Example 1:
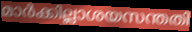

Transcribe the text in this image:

മാർക്കില്ലാശയസന്തതി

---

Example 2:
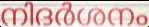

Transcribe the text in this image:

നിദർശനം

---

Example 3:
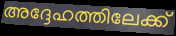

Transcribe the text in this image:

അദ്ദേഹത്തിലേക്ക്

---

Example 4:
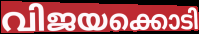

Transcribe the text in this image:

വിജയക്കൊടി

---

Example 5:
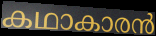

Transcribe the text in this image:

കഥാകാരൻ